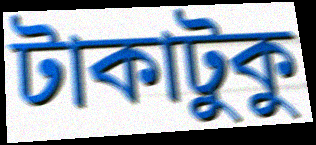
টাকাটুকু